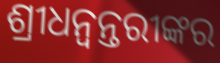
ଶ୍ରୀଧନ୍ୱନ୍ତରୀଙ୍କର